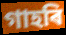
গাহৰি